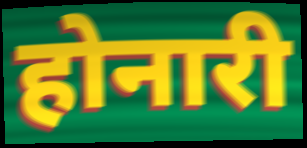
होनारी